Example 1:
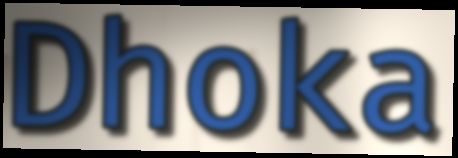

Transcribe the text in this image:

Dhoka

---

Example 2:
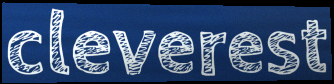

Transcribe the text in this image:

cleverest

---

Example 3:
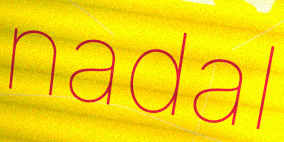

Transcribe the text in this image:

nadal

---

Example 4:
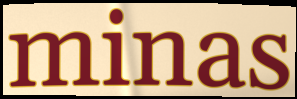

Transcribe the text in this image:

minas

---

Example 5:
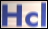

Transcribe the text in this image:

Hcl